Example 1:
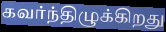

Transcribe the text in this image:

கவர்ந்திழுக்கிறது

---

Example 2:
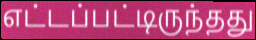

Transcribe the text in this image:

எட்டப்பட்டிருந்தது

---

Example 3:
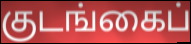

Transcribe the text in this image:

குடங்கைப்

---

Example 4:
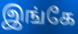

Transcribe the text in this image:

இங்கே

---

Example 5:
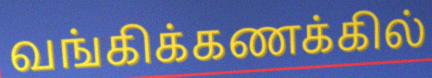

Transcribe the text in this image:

வங்கிக்கணக்கில்